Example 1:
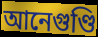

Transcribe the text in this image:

আনেগুণ্ডি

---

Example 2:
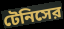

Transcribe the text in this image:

টেনিসের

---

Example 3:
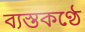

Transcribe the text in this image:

ব্যস্তকণ্ঠে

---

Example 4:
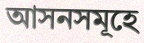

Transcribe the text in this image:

আসনসমূহে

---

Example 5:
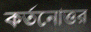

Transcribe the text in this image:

কর্তনোত্তর